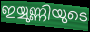
ഇയ്യുണ്ണിയുടെ